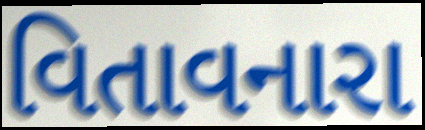
વિતાવનારા